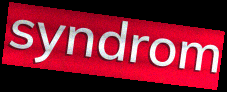
syndrom